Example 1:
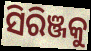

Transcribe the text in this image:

ସିରିଞ୍ଜକୁ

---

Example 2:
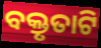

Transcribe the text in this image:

ବକ୍ତୃତାଟି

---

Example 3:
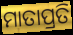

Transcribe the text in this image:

ମାତାପ୍ରତି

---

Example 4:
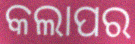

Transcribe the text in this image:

କଲାପର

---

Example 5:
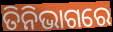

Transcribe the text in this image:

ତିନିଭାଗରେ